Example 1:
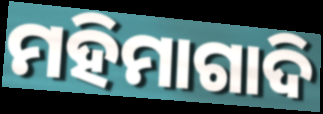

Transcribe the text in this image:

ମହିମାଗାଦି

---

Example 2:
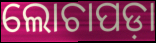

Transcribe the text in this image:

ଲୋଚାପଡ଼ା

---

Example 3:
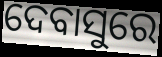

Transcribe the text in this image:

ଦେବାସୁରେ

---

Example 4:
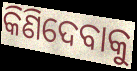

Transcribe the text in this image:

କିଣିଦେବାକୁ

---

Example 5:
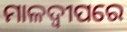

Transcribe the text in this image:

ମାଳଦ୍ବୀପରେ